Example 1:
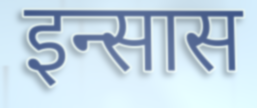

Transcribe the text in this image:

इन्सास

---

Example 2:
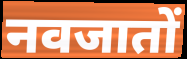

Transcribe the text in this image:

नवजातों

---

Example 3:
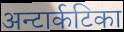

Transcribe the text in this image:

अन्टार्कटिका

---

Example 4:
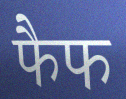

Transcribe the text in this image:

फैफ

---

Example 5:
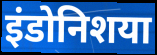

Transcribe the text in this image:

इंडोनिशया